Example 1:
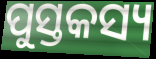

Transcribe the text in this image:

ପୁସ୍ତକସ୍ୟ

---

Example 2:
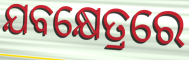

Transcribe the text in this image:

ଯବକ୍ଷେତ୍ରରେ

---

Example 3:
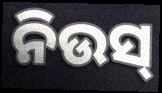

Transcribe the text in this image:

ନିଉସ୍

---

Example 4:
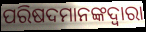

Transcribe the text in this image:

ପରିଷଦମାନଙ୍କଦ୍ୱାରା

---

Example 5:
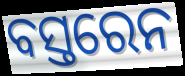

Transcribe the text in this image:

ବସ୍ତରେନ